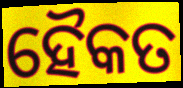
ହୈକତ